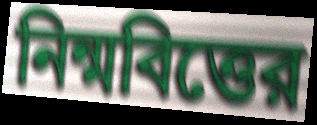
নিন্মবিত্তের